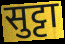
सुट्टा